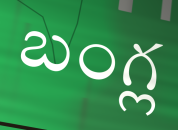
బంగ్ల